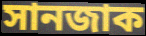
সানজাক